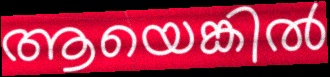
ആയെങ്കിൽ